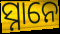
ସ୍ନାନେ